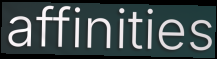
affinities